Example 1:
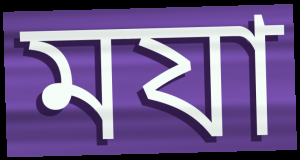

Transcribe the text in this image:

মযা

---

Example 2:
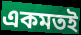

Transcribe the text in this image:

একমতই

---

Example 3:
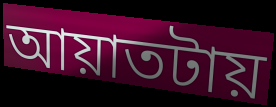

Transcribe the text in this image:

আয়াতটায়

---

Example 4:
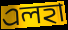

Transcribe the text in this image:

এলহা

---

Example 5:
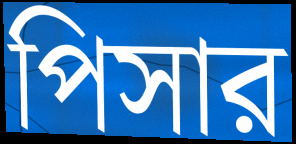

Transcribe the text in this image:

পিসার